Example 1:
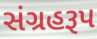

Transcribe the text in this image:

સંગ્રહરૂપ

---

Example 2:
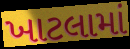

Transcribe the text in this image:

ખાટલામાં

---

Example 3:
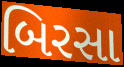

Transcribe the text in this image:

બિરસા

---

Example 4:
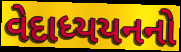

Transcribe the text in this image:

વેદાધ્યયનનો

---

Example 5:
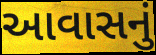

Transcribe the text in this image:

આવાસનું